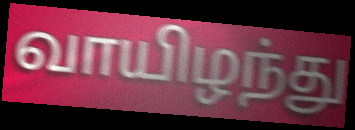
வாயிழந்து